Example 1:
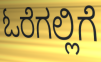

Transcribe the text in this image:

ಓರೆಗಲ್ಲಿಗೆ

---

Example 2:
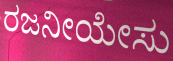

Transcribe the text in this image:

ರಜನೀಯೇಸು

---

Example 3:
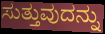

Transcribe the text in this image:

ಸುತ್ತುವುದನ್ನು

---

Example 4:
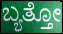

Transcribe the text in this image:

ಬ್ಯತ್ತೋ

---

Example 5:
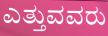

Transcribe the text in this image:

ಎತ್ತುವವರು